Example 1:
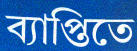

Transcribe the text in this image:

ব্যাপ্তিতে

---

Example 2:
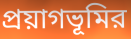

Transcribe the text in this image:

প্রয়াগভূমির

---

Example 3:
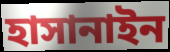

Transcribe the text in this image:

হাসানাইন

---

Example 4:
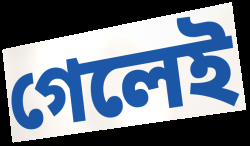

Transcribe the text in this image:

গেলেই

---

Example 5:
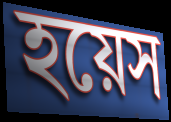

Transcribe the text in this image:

হয়েস